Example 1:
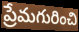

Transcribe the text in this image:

ప్రేమగురించి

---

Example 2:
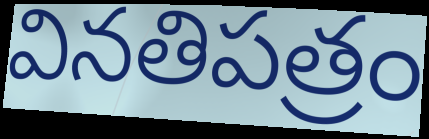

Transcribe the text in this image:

వినతిపత్రం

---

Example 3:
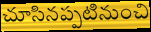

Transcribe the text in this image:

చూసినప్పటినుంచి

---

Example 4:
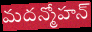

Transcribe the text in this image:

మదన్మోహన్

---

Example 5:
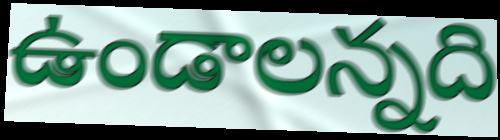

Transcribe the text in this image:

ఉండాలన్నది